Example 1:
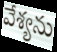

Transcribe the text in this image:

వేశ్యను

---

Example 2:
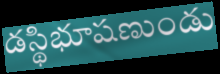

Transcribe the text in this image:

డస్థిభూషణుండు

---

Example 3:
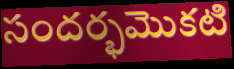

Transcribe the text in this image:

సందర్భమొకటి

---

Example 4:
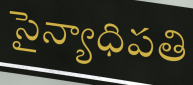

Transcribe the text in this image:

సైన్యాధిపతి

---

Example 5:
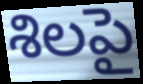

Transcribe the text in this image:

శిలపై